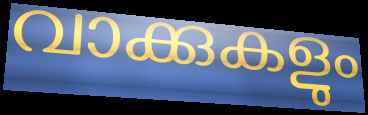
വാക്കുകളും